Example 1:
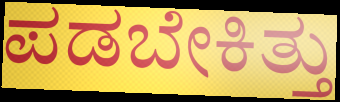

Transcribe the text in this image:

ಪಡಬೇಕಿತ್ತು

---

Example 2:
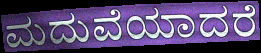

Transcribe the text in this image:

ಮದುವೆಯಾದರೆ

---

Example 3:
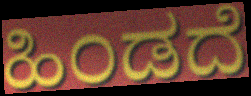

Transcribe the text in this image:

ಹಿಂಡದೆ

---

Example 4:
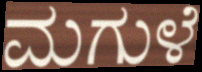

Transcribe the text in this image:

ಮಗುಳೆ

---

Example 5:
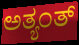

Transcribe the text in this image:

ಅತ್ಯಂತ್